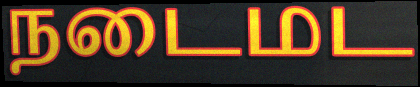
நடைமட